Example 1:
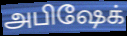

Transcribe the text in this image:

அபிஷேக்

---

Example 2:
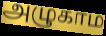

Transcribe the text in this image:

அழுகாம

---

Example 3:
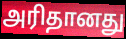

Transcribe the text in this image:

அரிதானது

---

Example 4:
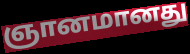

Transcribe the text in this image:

ஞானமானது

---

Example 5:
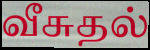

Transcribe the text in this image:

வீசுதல்